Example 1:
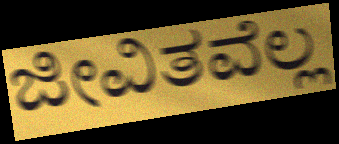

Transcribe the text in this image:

ಜೀವಿತವೆಲ್ಲ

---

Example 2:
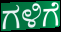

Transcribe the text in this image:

ಗಳಿಗೆ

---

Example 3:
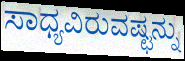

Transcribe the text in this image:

ಸಾಧ್ಯವಿರುವಷ್ಟನ್ನು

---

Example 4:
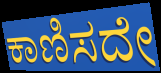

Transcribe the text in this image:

ಕಾಣಿಸದೇ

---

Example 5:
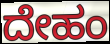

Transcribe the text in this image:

ದೇಹಂ